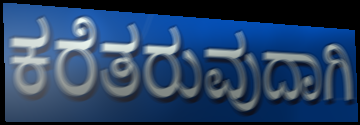
ಕರೆತರುವುದಾಗಿ